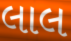
લાલ